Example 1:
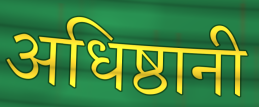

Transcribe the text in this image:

अधिष्ठानी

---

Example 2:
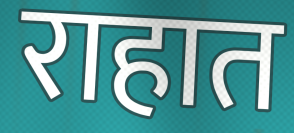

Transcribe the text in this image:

राहात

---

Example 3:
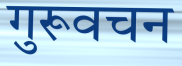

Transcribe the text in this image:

गुरूवचन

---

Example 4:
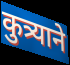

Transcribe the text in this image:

कुत्र्याने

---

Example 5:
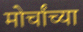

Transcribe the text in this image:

मोर्चांच्या